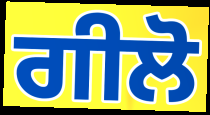
ਗੀਲੋ